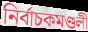
নির্বাচকমণ্ডলী